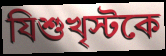
যিশুখৃস্টকে